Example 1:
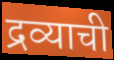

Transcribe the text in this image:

द्रव्याची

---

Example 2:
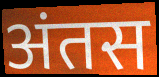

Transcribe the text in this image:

अंतस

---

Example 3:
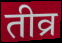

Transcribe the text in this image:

तीव्र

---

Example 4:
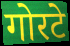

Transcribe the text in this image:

गोरटे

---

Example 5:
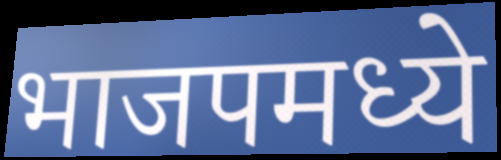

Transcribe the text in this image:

भाजपमध्ये